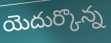
యెదుర్కొన్న